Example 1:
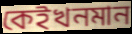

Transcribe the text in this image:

কেইখনমান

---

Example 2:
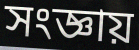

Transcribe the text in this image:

সংজ্ঞায়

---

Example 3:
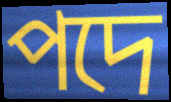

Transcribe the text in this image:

পদে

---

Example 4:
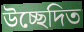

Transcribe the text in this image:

উচ্ছেদিত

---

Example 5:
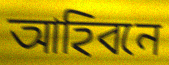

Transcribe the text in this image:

আহিবনে